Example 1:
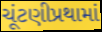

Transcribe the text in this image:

ચૂંટણીપ્રથામાં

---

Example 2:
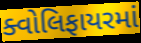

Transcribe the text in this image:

ક્વોલિફાયરમાં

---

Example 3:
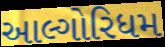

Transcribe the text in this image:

આલ્ગોરિધમ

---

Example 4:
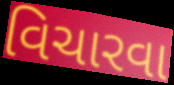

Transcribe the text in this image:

વિચારવા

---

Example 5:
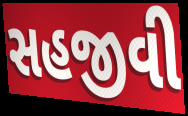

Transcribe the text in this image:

સહજીવી